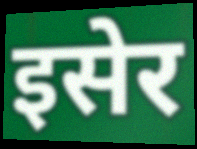
इसेर